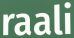
raali